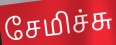
சேமிச்சு